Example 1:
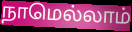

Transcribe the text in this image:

நாமெல்லாம்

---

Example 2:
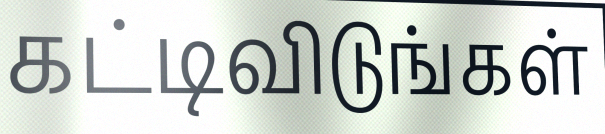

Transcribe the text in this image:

கட்டிவிடுங்கள்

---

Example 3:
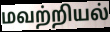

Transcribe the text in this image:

மவற்றியல்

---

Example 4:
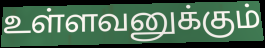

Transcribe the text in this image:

உள்ளவனுக்கும்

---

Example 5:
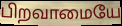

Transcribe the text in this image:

பிறவாமையே